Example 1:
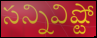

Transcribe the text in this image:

సన్నివిష్టో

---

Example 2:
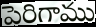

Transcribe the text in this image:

పెరిగాము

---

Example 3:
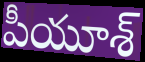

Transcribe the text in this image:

పీయూశ్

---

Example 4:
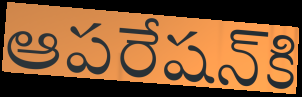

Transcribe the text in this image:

ఆపరేషన్‌కి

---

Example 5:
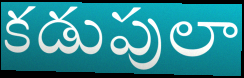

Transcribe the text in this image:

కడుపులా